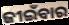
ଜୀଇଁବାର